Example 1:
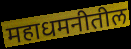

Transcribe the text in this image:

महाधमनीतील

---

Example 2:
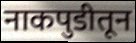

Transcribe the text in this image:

नाकपुडीतून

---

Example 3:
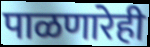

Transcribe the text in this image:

पाळणारेही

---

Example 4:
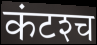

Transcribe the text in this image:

कंटश्च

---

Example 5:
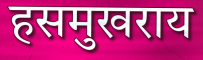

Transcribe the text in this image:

हसमुखराय